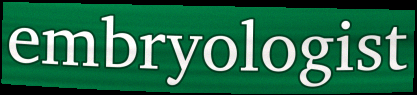
embryologist